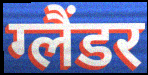
ग्लैंडर